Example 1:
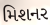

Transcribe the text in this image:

મિશનર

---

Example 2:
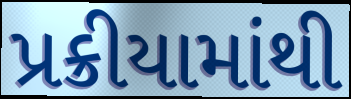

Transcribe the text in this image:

પ્રક્રીયામાંથી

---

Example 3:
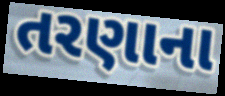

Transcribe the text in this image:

તરણાના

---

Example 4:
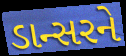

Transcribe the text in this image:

ડાન્સરને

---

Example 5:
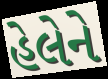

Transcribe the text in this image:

હેલેને